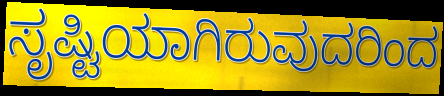
ಸೃಷ್ಟಿಯಾಗಿರುವುದರಿಂದ